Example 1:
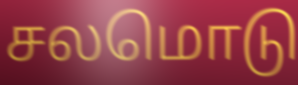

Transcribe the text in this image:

சலமொடு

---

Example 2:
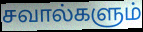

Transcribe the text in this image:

சவால்களும்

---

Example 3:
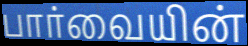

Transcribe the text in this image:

பார்வையின்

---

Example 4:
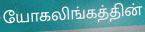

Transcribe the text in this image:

யோகலிங்கத்தின்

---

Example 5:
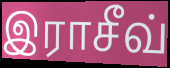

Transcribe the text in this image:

இராசீவ்